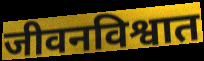
जीवनविश्वात